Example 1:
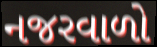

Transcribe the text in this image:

નજરવાળો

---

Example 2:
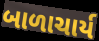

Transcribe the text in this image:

બાળાચાર્ય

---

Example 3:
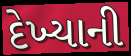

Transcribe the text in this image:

દેખ્યાની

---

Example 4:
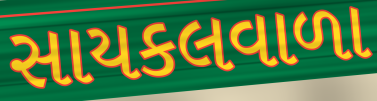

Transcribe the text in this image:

સાયકલવાળા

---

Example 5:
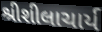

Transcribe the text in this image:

શ્રીશીલાચાર્ય